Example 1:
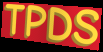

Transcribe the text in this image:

TPDS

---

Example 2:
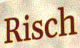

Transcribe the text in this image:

Risch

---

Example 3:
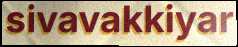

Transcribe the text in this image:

sivavakkiyar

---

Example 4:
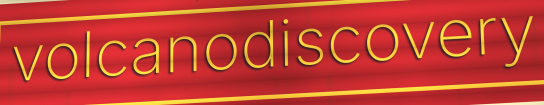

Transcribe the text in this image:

volcanodiscovery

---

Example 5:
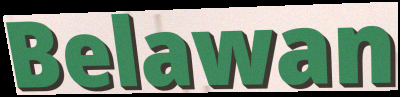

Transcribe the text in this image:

Belawan